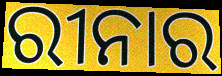
ରୀନାର